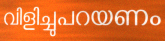
വിളിച്ചുപറയണം